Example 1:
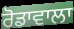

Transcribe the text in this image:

ਰੋਡਾਵਾਲਾ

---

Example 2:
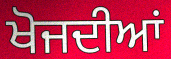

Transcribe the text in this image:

ਖੋਜਦੀਆਂ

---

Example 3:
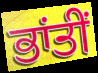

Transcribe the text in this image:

ਭਾਂਤੀਂ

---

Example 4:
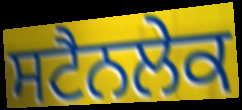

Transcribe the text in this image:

ਸਟੈਨਲੇਕ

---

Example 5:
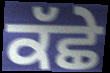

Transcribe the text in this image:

ਕੱਛੇ